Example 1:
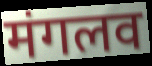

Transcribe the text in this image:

मंगलव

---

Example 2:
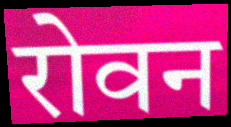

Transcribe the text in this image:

रोवन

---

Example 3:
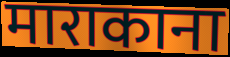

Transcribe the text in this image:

माराकाना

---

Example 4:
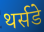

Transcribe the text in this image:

थर्सडे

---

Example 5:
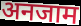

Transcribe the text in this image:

अनजाम